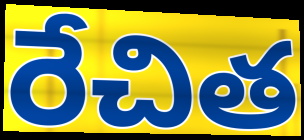
రేచిత